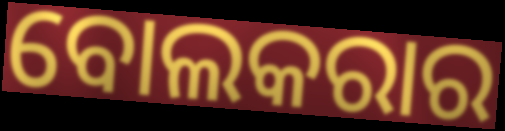
ବୋଲକରାର